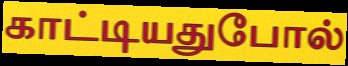
காட்டியதுபோல்